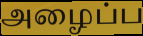
அழைப்ப